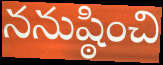
ననుష్ఠించి